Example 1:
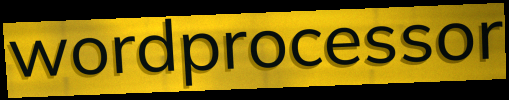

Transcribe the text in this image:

wordprocessor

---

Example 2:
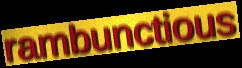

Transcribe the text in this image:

rambunctious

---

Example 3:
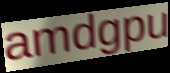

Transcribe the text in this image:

amdgpu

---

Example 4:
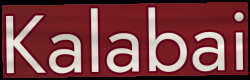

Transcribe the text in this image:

Kalabai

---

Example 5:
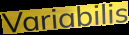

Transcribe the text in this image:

Variabilis